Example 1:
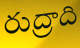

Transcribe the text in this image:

రుద్రాది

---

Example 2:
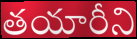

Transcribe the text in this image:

తయారీని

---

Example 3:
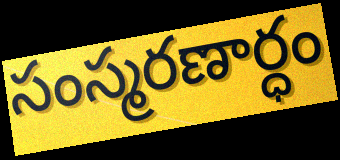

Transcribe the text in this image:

సంస్మరణార్ధం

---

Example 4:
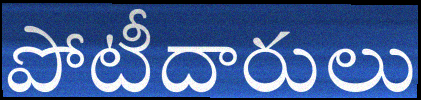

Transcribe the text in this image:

పోటీదారులు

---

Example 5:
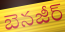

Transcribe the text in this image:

బెనజీర్